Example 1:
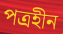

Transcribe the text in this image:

পত্রহীন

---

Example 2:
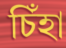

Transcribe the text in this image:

চিঁহা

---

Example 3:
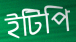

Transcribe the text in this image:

ইটিপি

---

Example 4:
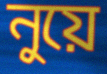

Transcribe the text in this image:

নুয়ে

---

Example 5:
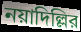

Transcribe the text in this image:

নয়াদিল্লির